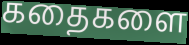
கதைகளை